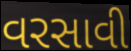
વરસાવી